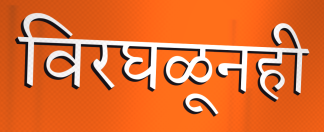
विरघळूनही